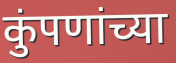
कुंपणांच्या